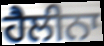
ਹੈਲੀਨਾ